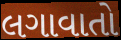
લગાવાતો